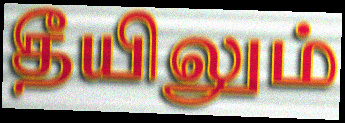
தீயிலும்